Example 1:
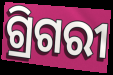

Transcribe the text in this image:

ଗ୍ରିଗରୀ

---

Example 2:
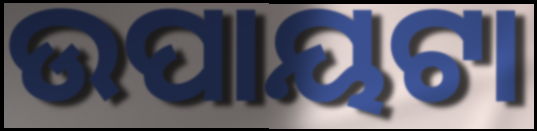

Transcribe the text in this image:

ଉପାୟଟା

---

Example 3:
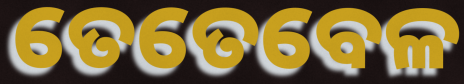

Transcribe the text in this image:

ତେତେବେଳ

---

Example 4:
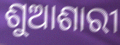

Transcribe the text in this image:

ଶୁଆଶାରୀ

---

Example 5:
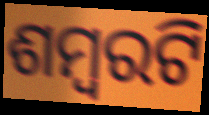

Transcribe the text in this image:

ଶମ୍ବରଟି